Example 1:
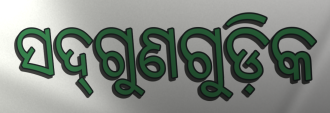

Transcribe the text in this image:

ସଦ୍‌ଗୁଣଗୁଡ଼ିକ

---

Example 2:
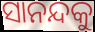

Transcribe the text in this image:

ସାନନ୍ଦକୁ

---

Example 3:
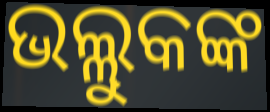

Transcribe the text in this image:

ଭଲ୍ଲୁକଙ୍କ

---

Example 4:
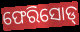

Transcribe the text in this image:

ଫେରିସୋଡ୍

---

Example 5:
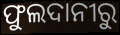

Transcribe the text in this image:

ଫୁଲଦାନୀରୁ